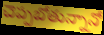
చెప్పబోతున్నానో